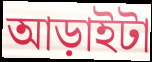
আড়াইটা